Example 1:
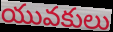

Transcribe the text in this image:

యువకులు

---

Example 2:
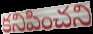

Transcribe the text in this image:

కనిపించని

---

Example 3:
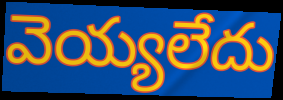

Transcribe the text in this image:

వెయ్యలేదు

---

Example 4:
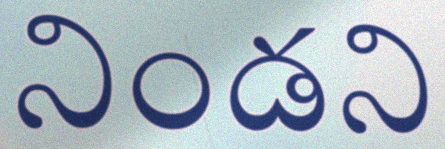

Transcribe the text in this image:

నిండని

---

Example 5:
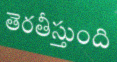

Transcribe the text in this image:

తెరతీస్తుంది